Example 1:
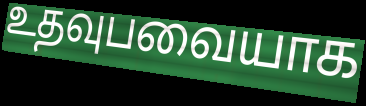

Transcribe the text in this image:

உதவுபவையாக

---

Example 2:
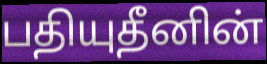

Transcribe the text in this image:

பதியுதீனின்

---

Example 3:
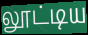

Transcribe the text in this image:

லூட்டிய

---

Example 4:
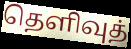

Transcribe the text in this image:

தெளிவுத்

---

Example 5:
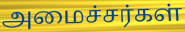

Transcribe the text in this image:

அமைச்சர்கள்